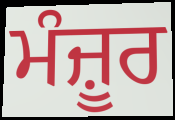
ਮੰਜ਼ੂਰ